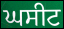
ਘਸੀਟ